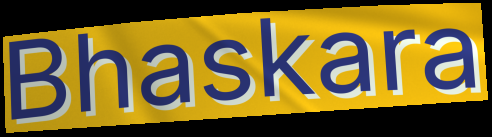
Bhaskara